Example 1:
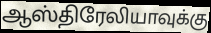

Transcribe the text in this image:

ஆஸ்திரேலியாவுக்கு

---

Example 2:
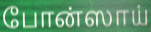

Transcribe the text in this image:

போன்ஸாய்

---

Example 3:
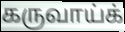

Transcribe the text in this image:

கருவாய்க்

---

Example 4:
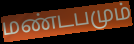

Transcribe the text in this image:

மண்டபமும்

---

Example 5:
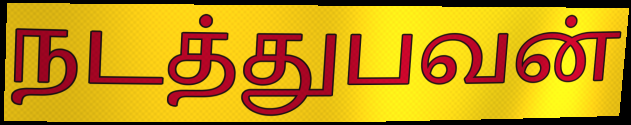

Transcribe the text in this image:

நடத்துபவன்